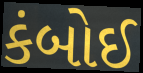
કંબોઈ